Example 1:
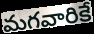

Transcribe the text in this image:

మగవారికే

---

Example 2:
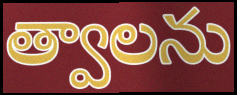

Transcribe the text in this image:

త్వాలను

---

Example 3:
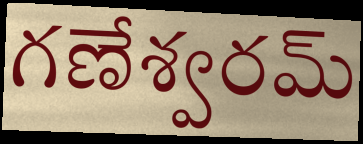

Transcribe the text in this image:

గణేశ్వరమ్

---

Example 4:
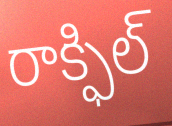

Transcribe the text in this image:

రాక్ఫిల్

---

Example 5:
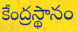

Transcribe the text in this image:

కేంద్రస్థానం